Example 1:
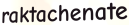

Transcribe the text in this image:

raktachenate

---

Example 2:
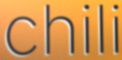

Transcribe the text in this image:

chili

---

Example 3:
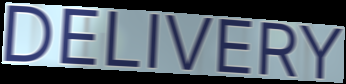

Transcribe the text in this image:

DELIVERY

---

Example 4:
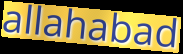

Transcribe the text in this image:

allahabad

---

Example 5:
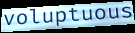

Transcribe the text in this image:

voluptuous